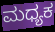
ಮಧ್ಯಕ